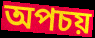
অপচয়